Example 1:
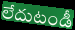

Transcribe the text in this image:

లేదుటండీ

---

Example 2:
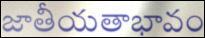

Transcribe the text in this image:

జాతీయతాభావం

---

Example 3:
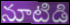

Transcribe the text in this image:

నూటిడి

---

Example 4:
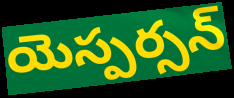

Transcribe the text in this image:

యెస్పర్సన్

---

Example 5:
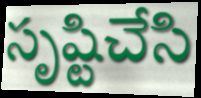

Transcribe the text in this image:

సృష్టిచేసి